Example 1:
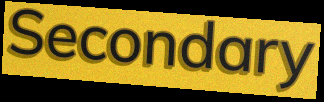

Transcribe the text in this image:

Secondary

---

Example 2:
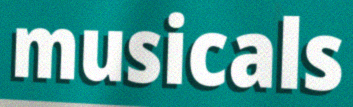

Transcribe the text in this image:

musicals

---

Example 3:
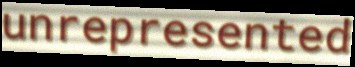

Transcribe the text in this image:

unrepresented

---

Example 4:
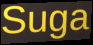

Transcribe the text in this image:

Suga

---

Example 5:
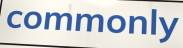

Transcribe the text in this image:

commonly